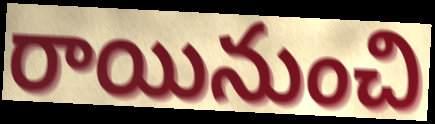
రాయినుంచి